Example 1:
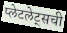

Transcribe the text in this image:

प्लेटलेट्‌सची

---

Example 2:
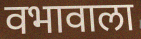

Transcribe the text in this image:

वभावाला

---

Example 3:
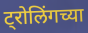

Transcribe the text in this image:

ट्रोलिंगच्या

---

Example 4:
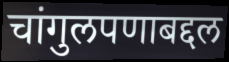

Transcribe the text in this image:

चांगुलपणाबद्दल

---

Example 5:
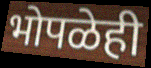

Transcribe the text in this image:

भोपळेही